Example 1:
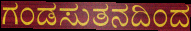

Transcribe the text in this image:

ಗಂಡಸುತನದಿಂದ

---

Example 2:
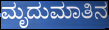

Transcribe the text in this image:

ಮೃದುಮಾತಿನ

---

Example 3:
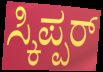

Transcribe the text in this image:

ಸ್ಕಿಪ್ಪರ್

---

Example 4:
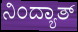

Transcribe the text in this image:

ನಿಂದ್ಯಾತ್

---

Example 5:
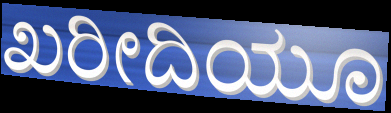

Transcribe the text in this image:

ಖರೀದಿಯೂ